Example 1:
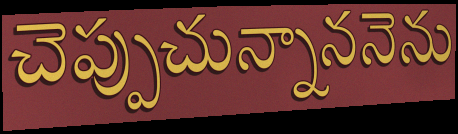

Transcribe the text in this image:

చెప్పుచున్నాననెను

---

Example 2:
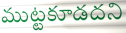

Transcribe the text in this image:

ముట్టకూడదని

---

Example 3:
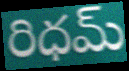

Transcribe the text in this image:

రిధమ్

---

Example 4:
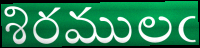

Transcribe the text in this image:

శిరములఁ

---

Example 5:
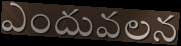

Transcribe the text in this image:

ఎందువలన